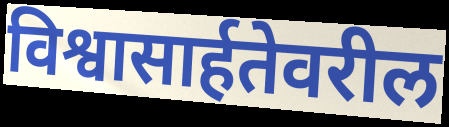
विश्वासार्हतेवरील